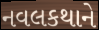
નવલકથાને